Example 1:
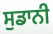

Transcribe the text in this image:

ਸੁਡਾਨੀ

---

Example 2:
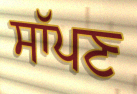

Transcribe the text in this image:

ਸਾੱਪਣ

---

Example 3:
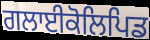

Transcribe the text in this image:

ਗਲਾਈਕੋਲਿਪਿਡ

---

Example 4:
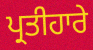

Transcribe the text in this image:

ਪ੍ਰਤੀਹਾਰੇ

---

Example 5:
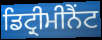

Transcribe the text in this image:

ਡਿਟ੍ਰੀਮੀਨੈਂਟ